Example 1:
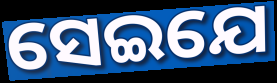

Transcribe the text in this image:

ସେଇଯେ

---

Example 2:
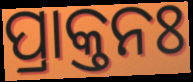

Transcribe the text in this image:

ପ୍ରାକ୍ତନଃ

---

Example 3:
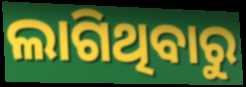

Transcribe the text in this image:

ଲାଗିଥିବାରୁ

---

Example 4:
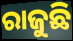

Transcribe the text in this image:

ରାଜୁଛି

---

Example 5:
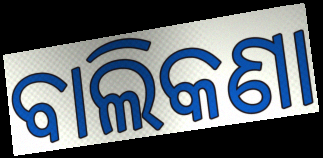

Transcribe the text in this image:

ବାଲିକଣା